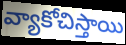
వ్యాకోచిస్తాయి